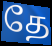
தே